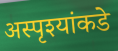
अस्पृश्यांकडे